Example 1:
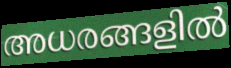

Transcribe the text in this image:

അധരങ്ങളിൽ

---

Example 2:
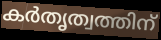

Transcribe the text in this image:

കർതൃത്വത്തിന്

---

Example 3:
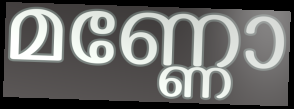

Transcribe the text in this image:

മണ്ണോ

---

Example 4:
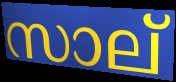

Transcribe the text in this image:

സാല്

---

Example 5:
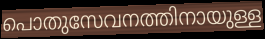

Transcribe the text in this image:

പൊതുസേവനത്തിനായുള്ള